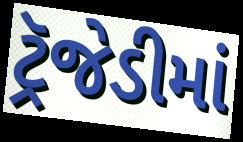
ટ્રૅજેડીમાં